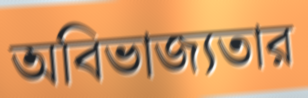
অবিভাজ্যতার